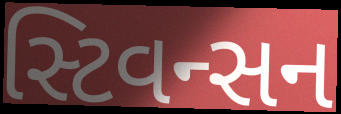
સ્ટિવન્સન